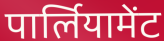
पार्लियामेंट